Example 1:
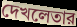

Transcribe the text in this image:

দেখলেতার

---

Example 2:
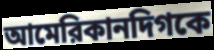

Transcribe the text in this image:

আমেরিকানদিগকে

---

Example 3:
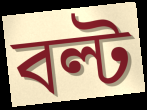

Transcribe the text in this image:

বল্ট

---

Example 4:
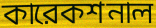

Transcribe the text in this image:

কারেকশনাল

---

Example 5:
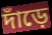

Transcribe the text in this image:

দাঁড়ে